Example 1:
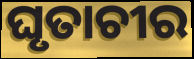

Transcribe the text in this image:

ଘୃତାଚୀର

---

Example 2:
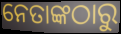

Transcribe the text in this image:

ନେତାଙ୍କଠାରୁ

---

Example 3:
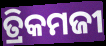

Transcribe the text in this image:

ତ୍ରିକମଜୀ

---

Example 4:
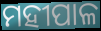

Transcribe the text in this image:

ମହୀପାଳ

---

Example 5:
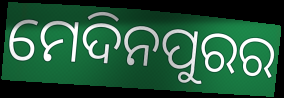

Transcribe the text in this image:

ମେଦିନପୁରର